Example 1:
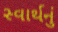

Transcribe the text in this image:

સ્વાર્થનું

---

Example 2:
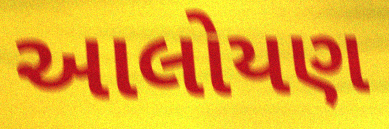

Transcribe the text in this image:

આલોયણ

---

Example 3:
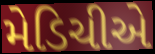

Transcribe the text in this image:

મેડિચીએ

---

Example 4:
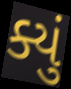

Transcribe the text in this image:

ક્યું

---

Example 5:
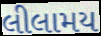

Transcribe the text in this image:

લીલામય